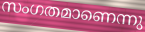
സംഗതമാണെന്നു